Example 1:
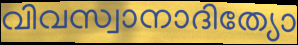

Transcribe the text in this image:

വിവസ്വാനാദിത്യോ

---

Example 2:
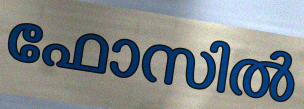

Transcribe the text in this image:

ഫോസിൽ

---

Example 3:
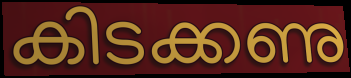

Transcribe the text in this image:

കിടക്കണു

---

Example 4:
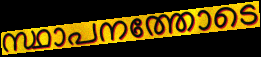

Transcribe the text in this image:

സ്ഥാപനത്തോടെ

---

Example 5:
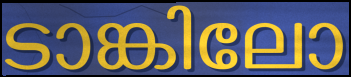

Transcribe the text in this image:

ടാങ്കിലോ